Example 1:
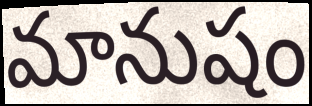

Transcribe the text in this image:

మానుషం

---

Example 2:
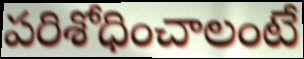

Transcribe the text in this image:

పరిశోధించాలంటే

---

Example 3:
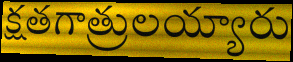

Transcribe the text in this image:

క్షతగాత్రులయ్యారు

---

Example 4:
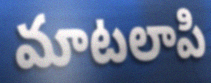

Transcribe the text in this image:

మాటలాపి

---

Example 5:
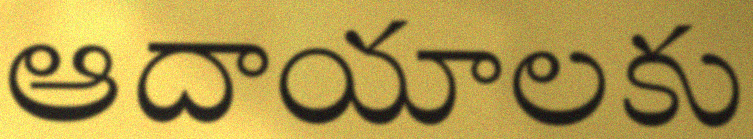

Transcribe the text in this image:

ఆదాయాలకు